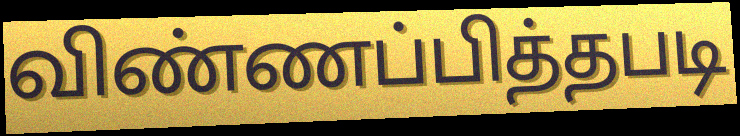
விண்ணப்பித்தபடி